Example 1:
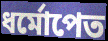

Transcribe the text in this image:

ধর্মোপেত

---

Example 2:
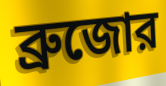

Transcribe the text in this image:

ব্রুজোর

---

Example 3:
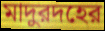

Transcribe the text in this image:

মাদুরদহের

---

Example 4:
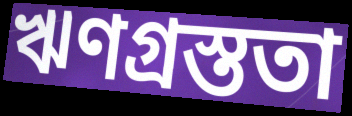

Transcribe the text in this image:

ঋণগ্রস্ততা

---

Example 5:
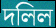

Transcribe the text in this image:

দলিল